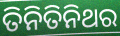
ତିନିତିନିଥର